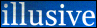
illusive